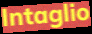
Intaglio